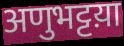
अणुभट्टय़ा